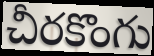
చీరకొంగు